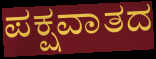
ಪಕ್ಷವಾತದ